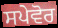
ਸਪੇਵੋਰ